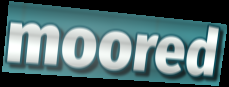
moored